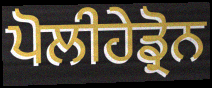
ਪੋਲੀਹੇਡ੍ਰੋਨ